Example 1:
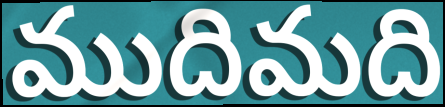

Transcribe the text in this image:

ముదిమది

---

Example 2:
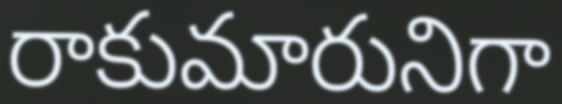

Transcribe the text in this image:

రాకుమారునిగా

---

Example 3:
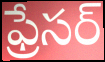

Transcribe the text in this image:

ఫ్రేసర్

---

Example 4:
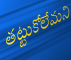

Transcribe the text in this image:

తట్టుకోలేమని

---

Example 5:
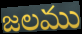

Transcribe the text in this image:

జలము